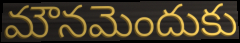
మౌనమెందుకు